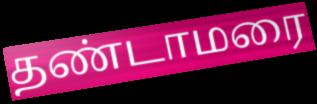
தண்டாமரை